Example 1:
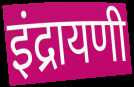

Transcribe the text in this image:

इंद्रायणी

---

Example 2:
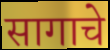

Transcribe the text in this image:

सागाचे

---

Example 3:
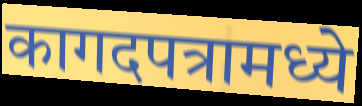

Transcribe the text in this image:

कागदपत्रामध्ये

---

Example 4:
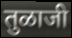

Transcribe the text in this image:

तुळाजी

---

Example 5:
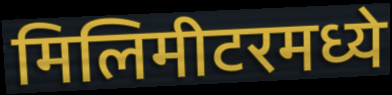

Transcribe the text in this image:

मिलिमीटरमध्ये